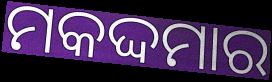
ମକଦ୍ଦମାର